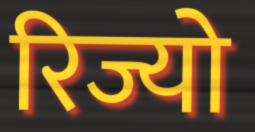
रिज्यो